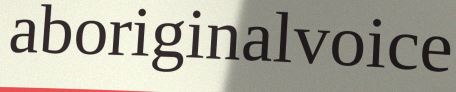
aboriginalvoice